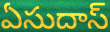
ఏసుదాస్